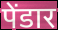
पेंडार